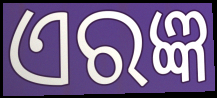
ଏରଜ୍ଞ